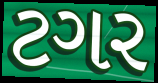
ટગર